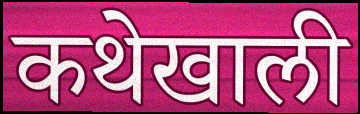
कथेखाली